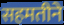
सहमतीने